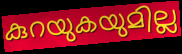
കുറയുകയുമില്ല